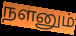
நளனும்